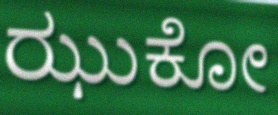
ಝುಕೋ